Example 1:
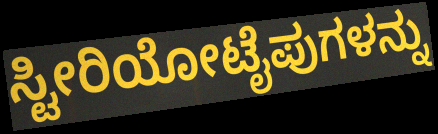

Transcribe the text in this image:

ಸ್ಟೀರಿಯೋಟೈಪುಗಳನ್ನು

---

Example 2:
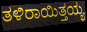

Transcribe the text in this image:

ತಳಿರಾಯಿತ್ತಯ್ಯ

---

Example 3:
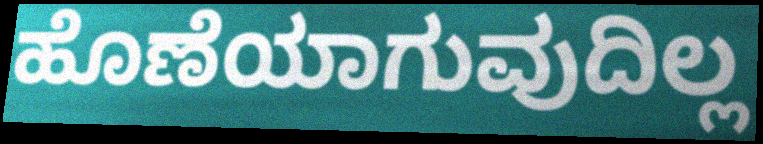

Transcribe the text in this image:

ಹೊಣೆಯಾಗುವುದಿಲ್ಲ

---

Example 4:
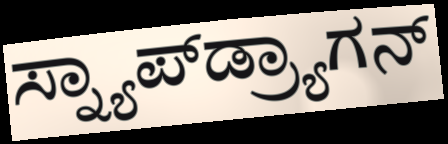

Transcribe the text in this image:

ಸ್ನ್ಯಾಪ್‌ಡ್ರ್ಯಾಗನ್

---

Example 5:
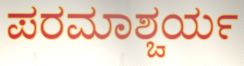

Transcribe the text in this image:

ಪರಮಾಶ್ಚರ್ಯ